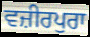
ਵਜ਼ੀਰਪੁਰਾ